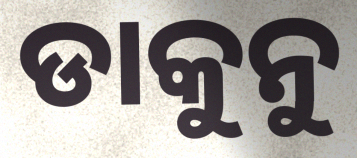
ଡାକୁନୁ